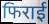
फिराई